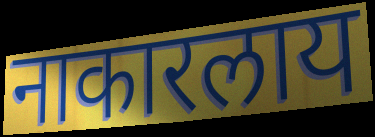
नाकारलाय